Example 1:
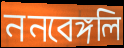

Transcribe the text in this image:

ননবেঙ্গলি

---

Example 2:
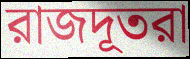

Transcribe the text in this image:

রাজদূতরা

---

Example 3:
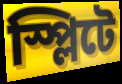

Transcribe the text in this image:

স্প্লিটে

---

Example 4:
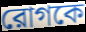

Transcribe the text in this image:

রোগকে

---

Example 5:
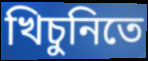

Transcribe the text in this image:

খিচুনিতে